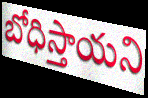
బోధిస్తాయని